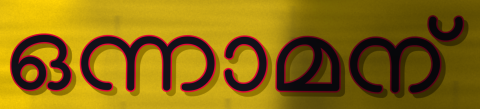
ഒന്നാമന്